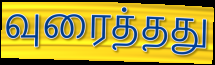
வுரைத்தது